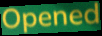
Opened